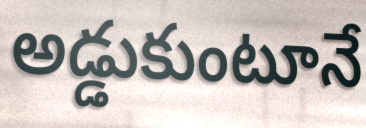
అడ్డుకుంటూనే